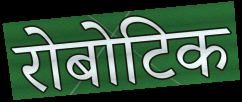
रोबोटिक